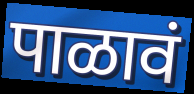
पाळावं